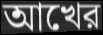
আখের